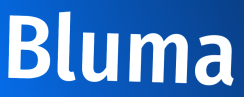
Bluma